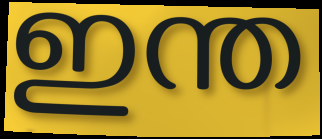
ഇന്ത